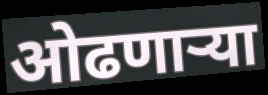
ओढणार्‍या